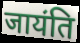
जायंति